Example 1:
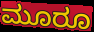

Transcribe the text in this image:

ಮೂರೂ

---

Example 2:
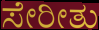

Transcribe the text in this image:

ಸೇರೀತು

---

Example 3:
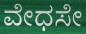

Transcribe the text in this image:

ವೇಧಸೇ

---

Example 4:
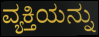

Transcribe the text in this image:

ವ್ಯಕ್ತಿಯನ್ನು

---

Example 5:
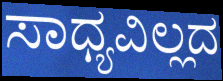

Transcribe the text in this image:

ಸಾಧ್ಯವಿಲ್ಲದ